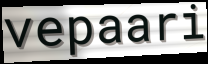
vepaari